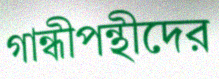
গান্ধীপন্থীদের